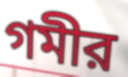
গমীর